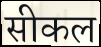
सीकल